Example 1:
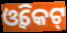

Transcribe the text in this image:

ଓ୍ଵିକେଟ୍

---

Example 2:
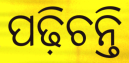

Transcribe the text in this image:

ପଢ଼ିଚନ୍ତି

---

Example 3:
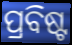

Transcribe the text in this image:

ପ୍ରବିଷ୍ଟ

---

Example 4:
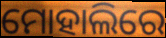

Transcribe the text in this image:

ମୋହାଲିରେ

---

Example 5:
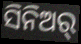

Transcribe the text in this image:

ସିନିଅର୍